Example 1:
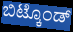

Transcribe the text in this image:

ಬಿಟ್ಕೊಂಡ್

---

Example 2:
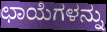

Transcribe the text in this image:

ಛಾಯೆಗಳನ್ನು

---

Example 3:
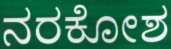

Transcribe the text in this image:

ನರಕೋಶ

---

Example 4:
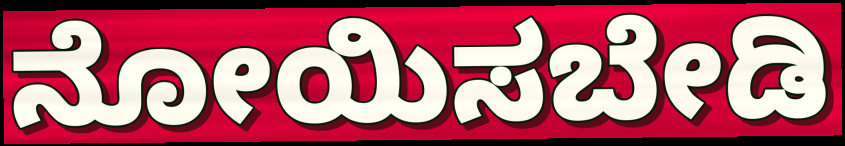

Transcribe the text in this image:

ನೋಯಿಸಬೇಡಿ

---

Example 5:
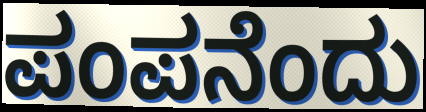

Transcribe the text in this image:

ಪಂಪನೆಂದು